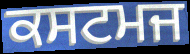
ਕਸਟਮਜ